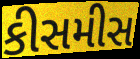
કીસમીસ